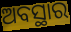
ଅବସ୍ଥାର